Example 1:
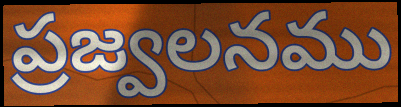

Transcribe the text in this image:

ప్రజ్వలనము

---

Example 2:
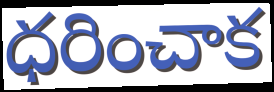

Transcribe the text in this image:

ధరించాక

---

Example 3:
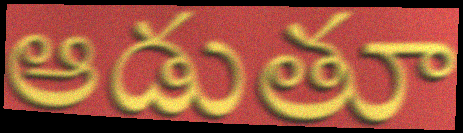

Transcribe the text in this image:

ఆడుతూ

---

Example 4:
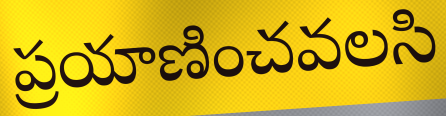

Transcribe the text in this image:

ప్రయాణించవలసి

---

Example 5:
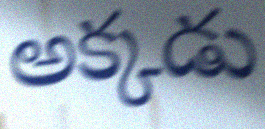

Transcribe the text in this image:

అక్కడు